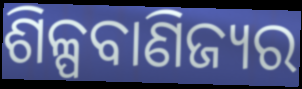
ଶିଳ୍ପବାଣିଜ୍ୟର